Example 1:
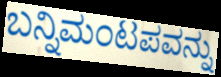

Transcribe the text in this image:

ಬನ್ನಿಮಂಟಪವನ್ನು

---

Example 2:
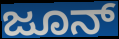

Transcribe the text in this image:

ಜೂನ್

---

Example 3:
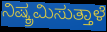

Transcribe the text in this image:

ನಿಷ್ಕ್ರಮಿಸುತ್ತಾಳೆ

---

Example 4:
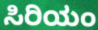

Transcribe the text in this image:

ಸಿರಿಯಂ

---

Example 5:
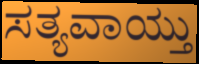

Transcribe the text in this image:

ಸತ್ಯವಾಯ್ತು